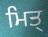
ਮਿਤ੍